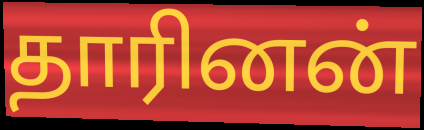
தாரினன்